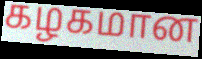
கழகமான